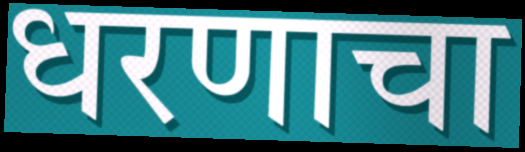
धरणाचा